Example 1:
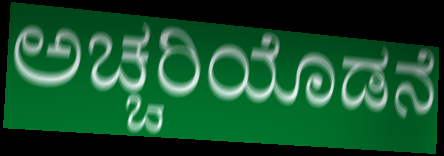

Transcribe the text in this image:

ಅಚ್ಚರಿಯೊಡನೆ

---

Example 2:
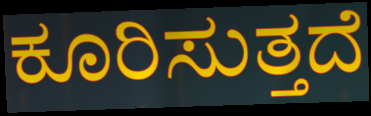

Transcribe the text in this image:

ಕೂರಿಸುತ್ತದೆ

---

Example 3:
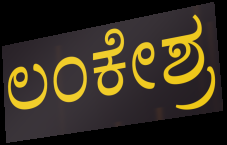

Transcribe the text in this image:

ಲಂಕೇಶ್ರ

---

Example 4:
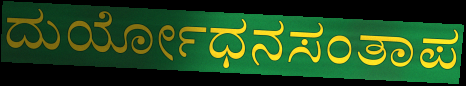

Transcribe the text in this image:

ದುರ್ಯೋಧನಸಂತಾಪ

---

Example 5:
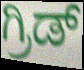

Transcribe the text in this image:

ಗ್ರಿಡ್